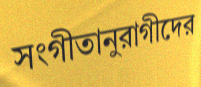
সংগীতানুরাগীদের